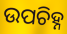
ଉପଚିହ୍ନ